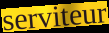
serviteur